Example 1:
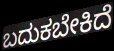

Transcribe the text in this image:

ಬದುಕಬೇಕಿದೆ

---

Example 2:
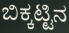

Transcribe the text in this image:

ಬಿಕ್ಕಟ್ಟಿನ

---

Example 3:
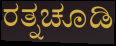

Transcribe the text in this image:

ರತ್ನಚೂಡಿ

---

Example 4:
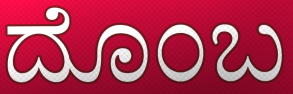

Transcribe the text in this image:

ದೊಂಬ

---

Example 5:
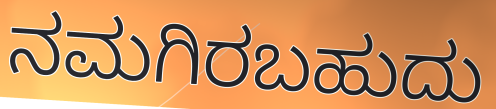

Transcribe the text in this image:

ನಮಗಿರಬಹುದು